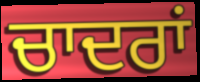
ਚਾਦਰਾਂ